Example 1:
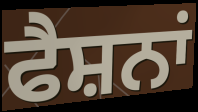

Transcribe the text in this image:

ਫੈਸ਼ਨਾਂ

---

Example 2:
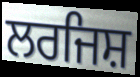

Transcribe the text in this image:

ਲਰਜਿਸ਼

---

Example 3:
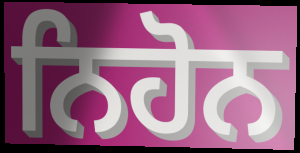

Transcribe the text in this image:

ਨਿਹੋਨ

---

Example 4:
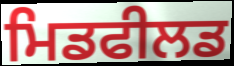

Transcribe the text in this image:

ਮਿਡਫੀਲਡ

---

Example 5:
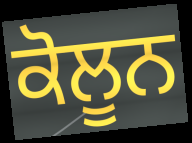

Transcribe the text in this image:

ਕੋਲੂਨ